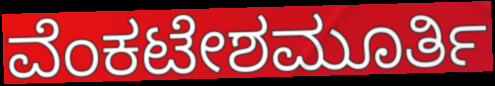
ವೆಂಕಟೇಶಮೂರ್ತಿ